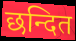
छन्दित